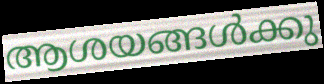
ആശയങ്ങൾക്കു